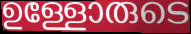
ഉള്ളോരുടെ